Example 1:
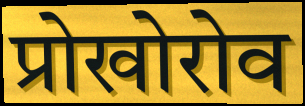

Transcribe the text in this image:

प्रोखोरोव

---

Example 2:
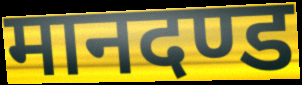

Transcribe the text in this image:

मानदण्ड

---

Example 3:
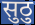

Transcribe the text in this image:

सुठु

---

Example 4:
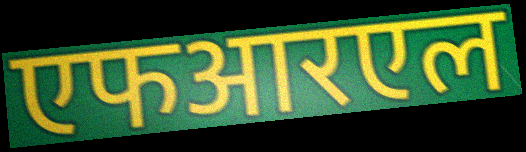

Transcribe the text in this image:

एफआरएल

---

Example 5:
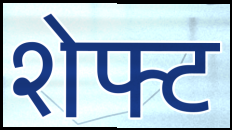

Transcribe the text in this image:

शेफ्ट